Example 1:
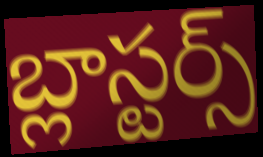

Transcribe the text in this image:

బ్లాస్టర్స్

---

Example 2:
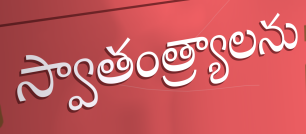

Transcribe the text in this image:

స్వాతంత్ర్యాలను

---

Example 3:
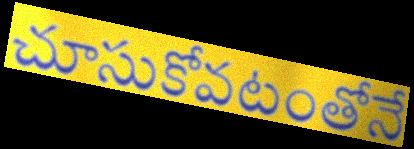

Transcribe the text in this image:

చూసుకోవటంతోనే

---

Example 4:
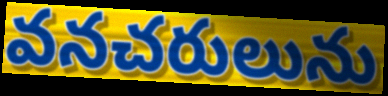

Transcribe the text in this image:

వనచరులును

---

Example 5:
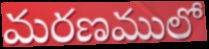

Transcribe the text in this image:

మరణములో